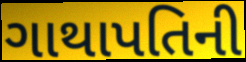
ગાથાપતિની